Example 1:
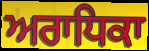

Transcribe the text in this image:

ਅਰਾਧਿਕਾ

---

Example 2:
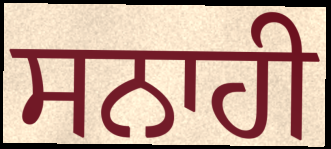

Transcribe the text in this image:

ਸਨਾਹੀ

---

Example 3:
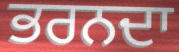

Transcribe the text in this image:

ਭਰਨਦਾ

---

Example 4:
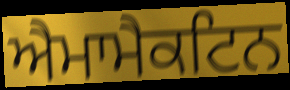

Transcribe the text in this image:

ਐਮਾਮੈਕਟਿਨ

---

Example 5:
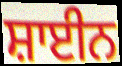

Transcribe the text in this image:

ਸ਼ਾਈਨ